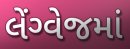
લેંગ્વેજમાં